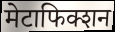
मेटाफिक्शन